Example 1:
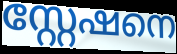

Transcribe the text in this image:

സ്റ്റേഷനെ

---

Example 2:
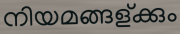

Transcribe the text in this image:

നിയമങ്ങള്ക്കും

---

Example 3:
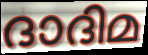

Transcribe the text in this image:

ദാദിമ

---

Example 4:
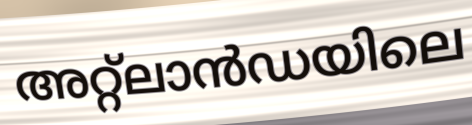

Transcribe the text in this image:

അറ്റ്ലാൻഡയിലെ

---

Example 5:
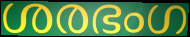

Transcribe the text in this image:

ശരഭംഗ